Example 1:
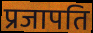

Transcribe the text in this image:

प्रजापति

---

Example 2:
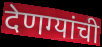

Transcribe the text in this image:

देणग्यांची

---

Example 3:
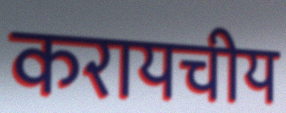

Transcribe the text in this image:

करायचीय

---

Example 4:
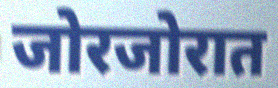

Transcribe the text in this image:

जोरजोरात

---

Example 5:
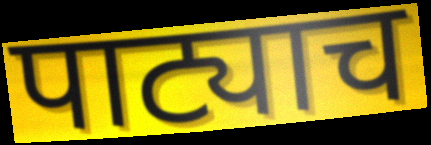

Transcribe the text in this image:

पाट्याच